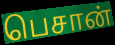
பெசான்